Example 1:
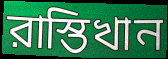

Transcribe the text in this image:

রাস্তিখান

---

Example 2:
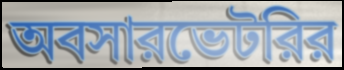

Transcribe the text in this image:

অবসারভেটরির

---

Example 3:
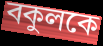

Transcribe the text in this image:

বকুলকে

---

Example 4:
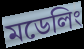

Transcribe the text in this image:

মডেলিং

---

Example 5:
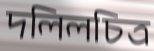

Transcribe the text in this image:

দলিলচিত্র